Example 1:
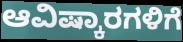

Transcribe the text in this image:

ಆವಿಷ್ಕಾರಗಳಿಗೆ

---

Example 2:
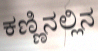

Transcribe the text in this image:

ಕಣ್ಣಿನಲ್ಲಿನ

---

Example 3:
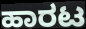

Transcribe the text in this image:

ಹಾರಟ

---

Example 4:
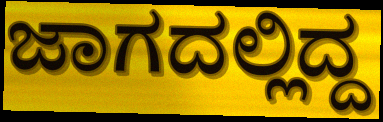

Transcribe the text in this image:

ಜಾಗದಲ್ಲಿದ್ದ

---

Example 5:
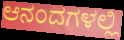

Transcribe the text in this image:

ಆನಂದಗಳಲ್ಲಿ